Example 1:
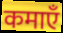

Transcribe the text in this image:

कमाएँ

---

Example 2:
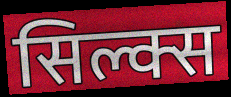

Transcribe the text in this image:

सिल्क्स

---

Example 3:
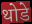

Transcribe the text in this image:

थोडे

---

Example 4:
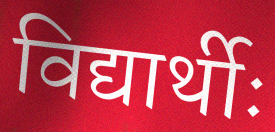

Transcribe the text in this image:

विद्यार्थीः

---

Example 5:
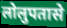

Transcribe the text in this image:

लोलुपतासे